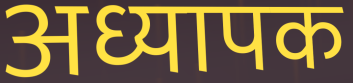
अध्यापक